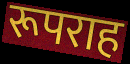
रूपराह